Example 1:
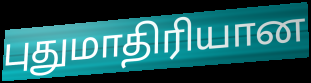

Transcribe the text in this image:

புதுமாதிரியான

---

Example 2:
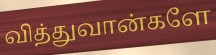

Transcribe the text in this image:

வித்துவான்களே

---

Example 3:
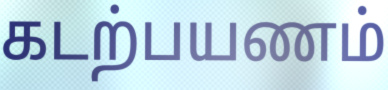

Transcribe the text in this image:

கடற்பயணம்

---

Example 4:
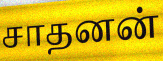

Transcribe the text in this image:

சாதனன்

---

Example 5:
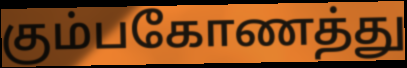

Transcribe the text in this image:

கும்பகோணத்து